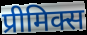
प्रीमिक्स